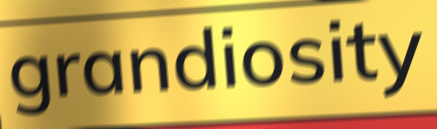
grandiosity